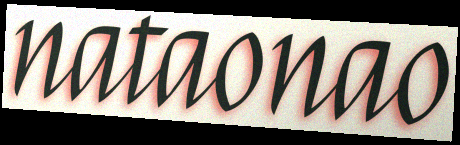
nataonao